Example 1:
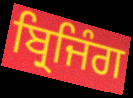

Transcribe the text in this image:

ਬ੍ਰਿਜਿੰਗ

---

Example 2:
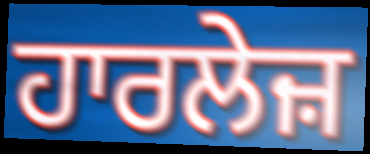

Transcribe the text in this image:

ਹਾਰਲੇਜ਼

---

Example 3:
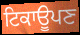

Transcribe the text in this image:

ਟਿਕਾਊਪਣ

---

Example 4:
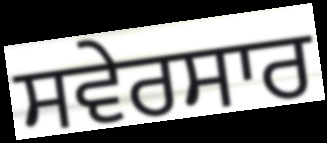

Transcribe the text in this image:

ਸਵੇਰਸਾਰ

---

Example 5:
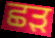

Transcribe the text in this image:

ਛੜ